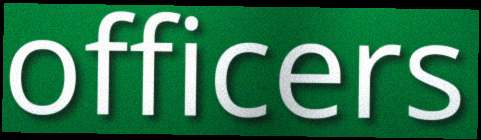
officers